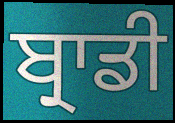
ਬ੍ਰਾਡੀ